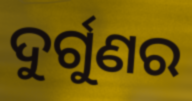
ଦୁର୍ଗୁଣର